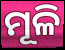
ମୂଳି